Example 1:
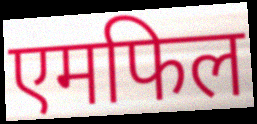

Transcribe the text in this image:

एमफिल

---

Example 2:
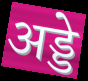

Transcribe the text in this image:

अड्डे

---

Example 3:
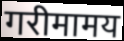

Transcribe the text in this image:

गरीमामय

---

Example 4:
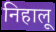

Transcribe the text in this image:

निहालू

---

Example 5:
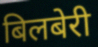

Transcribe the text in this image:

बिलबेरी